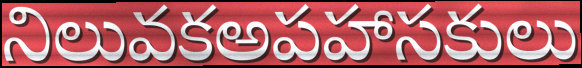
నిలువకఅపహాసకులు